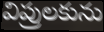
విప్రులకును